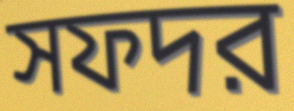
সফদর